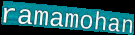
ramamohan